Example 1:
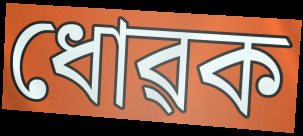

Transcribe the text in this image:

ধোৱক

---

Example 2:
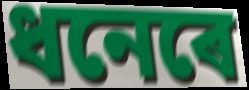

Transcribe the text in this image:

ধনেৰে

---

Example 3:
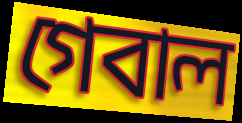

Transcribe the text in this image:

গেবাল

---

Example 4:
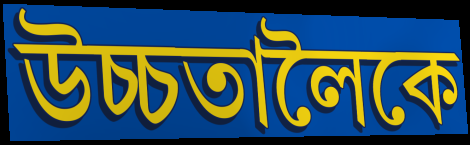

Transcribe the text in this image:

উচ্চতালৈকে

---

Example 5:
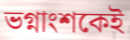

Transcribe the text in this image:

ভগ্নাংশকেই